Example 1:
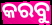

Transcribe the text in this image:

କରବୁ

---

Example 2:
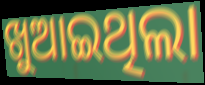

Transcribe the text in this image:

ଖୁଆଇଥିଲା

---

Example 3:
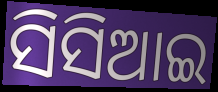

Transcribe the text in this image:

ସିସିଆଇ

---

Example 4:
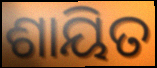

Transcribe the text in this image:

ଶାୟିତ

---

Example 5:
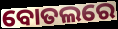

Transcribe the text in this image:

ବୋତଲରେ